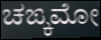
ಚಙ್ಕಮೋ